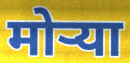
मोऱ्या